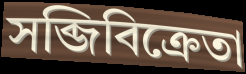
সব্জিবিক্রেতা